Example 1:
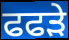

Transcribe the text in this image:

ਫਫਡ਼ੇ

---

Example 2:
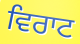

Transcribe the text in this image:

ਵਿਰਾਟ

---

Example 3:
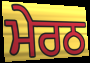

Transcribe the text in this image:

ਮੇਰਠ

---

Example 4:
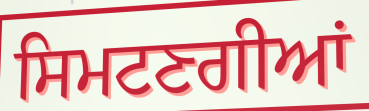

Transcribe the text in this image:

ਸਿਮਟਣਗੀਆਂ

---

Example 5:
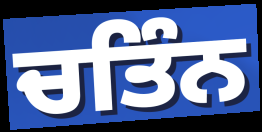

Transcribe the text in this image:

ਚਤਿੰਨ